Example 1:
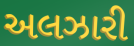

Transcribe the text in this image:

અલઝારી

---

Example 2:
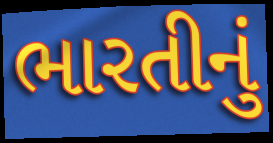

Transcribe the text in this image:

ભારતીનું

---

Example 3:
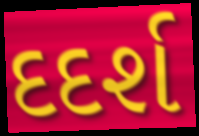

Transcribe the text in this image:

દદર્શ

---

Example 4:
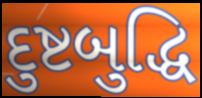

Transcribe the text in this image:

દુષ્ટબુદ્ધિ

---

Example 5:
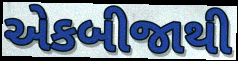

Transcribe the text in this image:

એકબીજાથી